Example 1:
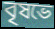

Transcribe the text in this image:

বৃষভে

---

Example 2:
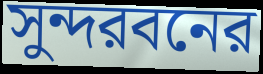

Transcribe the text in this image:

সুন্দরবনের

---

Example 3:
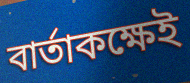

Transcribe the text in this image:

বার্তাকক্ষেই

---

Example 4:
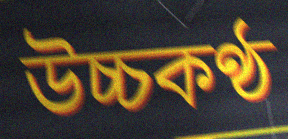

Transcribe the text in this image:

উচ্চকণ্ঠ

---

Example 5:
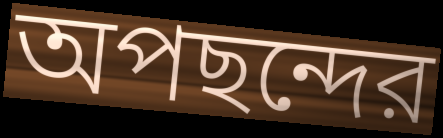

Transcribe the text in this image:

অপছন্দের